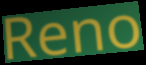
Reno